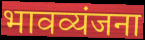
भावव्यंजना